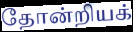
தோன்றியக்